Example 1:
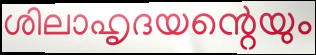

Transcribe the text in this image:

ശിലാഹൃദയന്റെയും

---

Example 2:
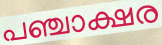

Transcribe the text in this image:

പഞ്ചാക്ഷര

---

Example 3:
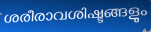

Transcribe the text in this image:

ശരീരാവശിഷ്ടങ്ങളും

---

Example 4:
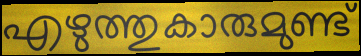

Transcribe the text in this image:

എഴുത്തുകാരുമുണ്ട്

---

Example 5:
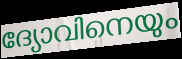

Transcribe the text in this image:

ദ്യോവിനെയും